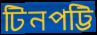
টিনপট্টি